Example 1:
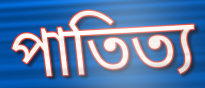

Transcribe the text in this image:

পাতিত্য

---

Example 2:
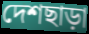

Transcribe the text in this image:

দেশছাড়া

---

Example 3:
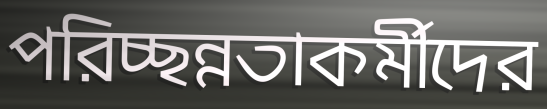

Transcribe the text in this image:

পরিচ্ছন্নতাকর্মীদের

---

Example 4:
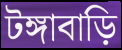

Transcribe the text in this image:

টঙ্গাবাড়ি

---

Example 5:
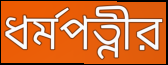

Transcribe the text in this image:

ধর্মপত্নীর